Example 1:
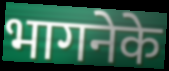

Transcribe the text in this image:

भागनेके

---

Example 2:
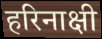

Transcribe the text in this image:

हरिनाक्षी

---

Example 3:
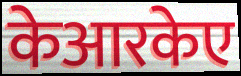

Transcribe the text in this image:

केआरकेए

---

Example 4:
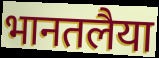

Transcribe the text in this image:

भानतलैया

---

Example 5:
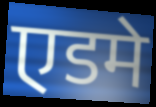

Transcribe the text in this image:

एडमे